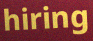
hiring